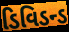
ડિવિડન્ડ